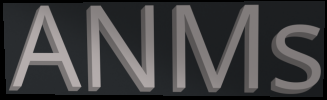
ANMs